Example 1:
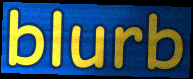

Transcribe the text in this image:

blurb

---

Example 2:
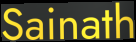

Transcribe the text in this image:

Sainath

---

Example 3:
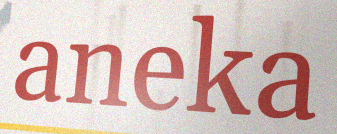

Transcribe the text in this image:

aneka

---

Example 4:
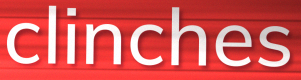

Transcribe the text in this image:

clinches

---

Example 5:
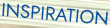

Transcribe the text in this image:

INSPIRATION